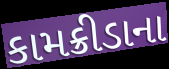
કામક્રીડાના